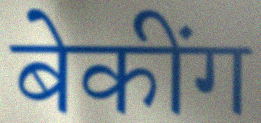
बेकींग